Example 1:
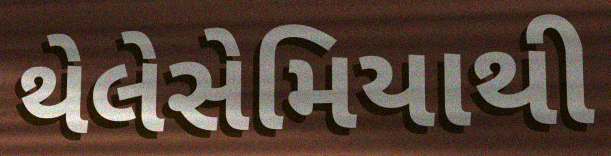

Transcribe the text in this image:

થેલેસેમિયાથી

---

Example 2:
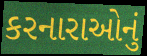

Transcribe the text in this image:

કરનારાઓનું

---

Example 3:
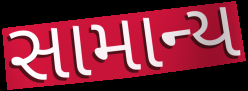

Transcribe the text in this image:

સામાન્ય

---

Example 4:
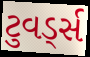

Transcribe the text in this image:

ટુવર્ડ્સ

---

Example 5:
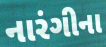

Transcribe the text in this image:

નારંગીના